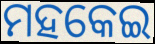
ମହକେଇ